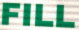
FILL